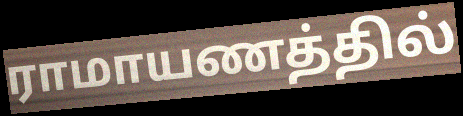
ராமாயணத்தில்